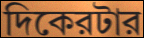
দিকেরটার